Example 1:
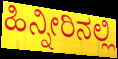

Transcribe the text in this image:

ಹಿನ್ನೀರಿನಲ್ಲಿ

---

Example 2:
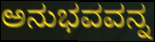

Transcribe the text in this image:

ಅನುಭವವನ್ನ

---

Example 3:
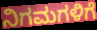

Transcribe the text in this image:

ನಿಗಮಗಳಿಗೆ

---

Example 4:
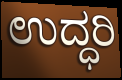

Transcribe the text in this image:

ಉದ್ಧರಿ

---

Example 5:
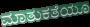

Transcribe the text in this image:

ಮಾತುಕತೆಯೂ